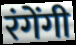
रंगेंगी